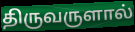
திருவருளால்